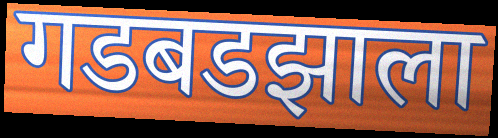
गडबडझाला